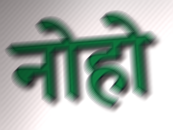
नोहो